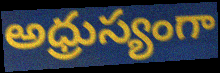
అధ్రుస్యంగా